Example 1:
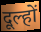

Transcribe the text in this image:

दूल्‍हों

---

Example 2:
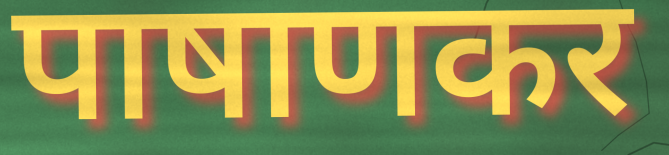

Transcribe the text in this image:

पाषाणकर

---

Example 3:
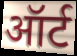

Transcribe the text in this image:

ऑर्ट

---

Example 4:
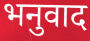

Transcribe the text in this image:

भनुवाद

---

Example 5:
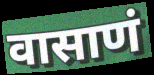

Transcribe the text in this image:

वासाणं